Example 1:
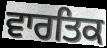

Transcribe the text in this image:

ਵਾਰਤਿਕ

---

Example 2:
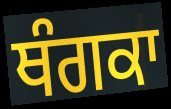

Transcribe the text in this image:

ਥੰਗਕਾ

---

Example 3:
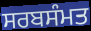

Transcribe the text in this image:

ਸਰਬਸੰਮਤ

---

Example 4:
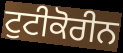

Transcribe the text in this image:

ਟੁਟੀਕੋਰੀਨ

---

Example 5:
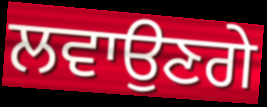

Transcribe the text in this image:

ਲਵਾਉਣਗੇ